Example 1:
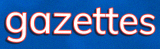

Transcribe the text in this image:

gazettes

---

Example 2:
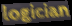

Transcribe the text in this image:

logician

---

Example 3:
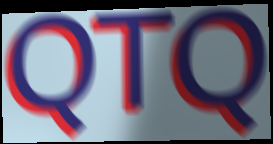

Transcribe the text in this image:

QTQ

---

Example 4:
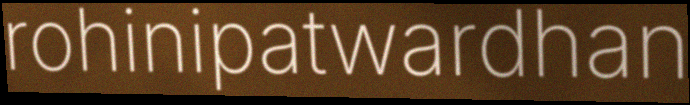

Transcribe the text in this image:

rohinipatwardhan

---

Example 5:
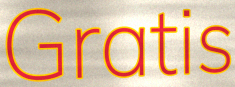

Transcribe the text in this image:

Gratis